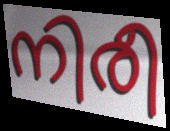
നിരീ